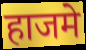
हाजमे